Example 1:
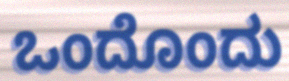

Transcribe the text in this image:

ಒಂದೊಂದು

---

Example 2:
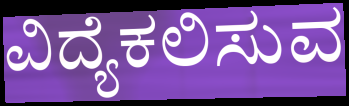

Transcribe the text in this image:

ವಿದ್ಯೆಕಲಿಸುವ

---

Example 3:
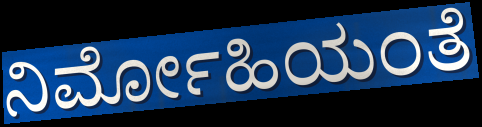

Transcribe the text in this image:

ನಿರ್ಮೋಹಿಯಂತೆ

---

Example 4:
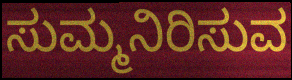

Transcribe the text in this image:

ಸುಮ್ಮನಿರಿಸುವ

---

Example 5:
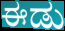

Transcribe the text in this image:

ಈಡು